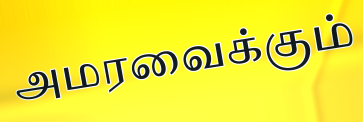
அமரவைக்கும்